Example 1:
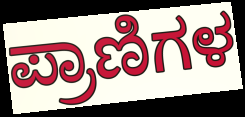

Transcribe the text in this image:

ಪ್ರಾಣಿಗಳ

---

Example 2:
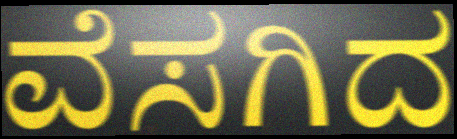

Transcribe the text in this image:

ವೆಸಗಿದ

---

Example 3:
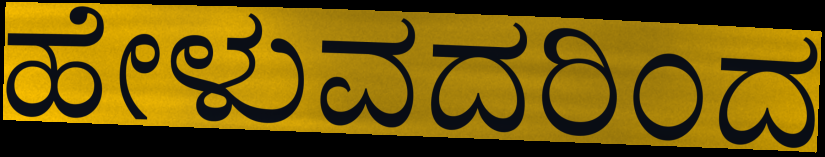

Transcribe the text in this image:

ಹೇಳುವದರಿಂದ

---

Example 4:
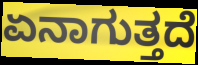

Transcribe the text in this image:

ಏನಾಗುತ್ತದೆ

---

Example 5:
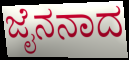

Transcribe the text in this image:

ಜೈನನಾದ